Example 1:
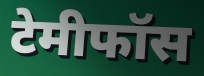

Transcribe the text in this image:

टेमीफॉस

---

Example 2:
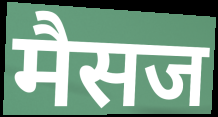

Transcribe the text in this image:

मैसज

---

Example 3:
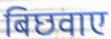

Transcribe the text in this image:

बिछवाए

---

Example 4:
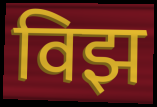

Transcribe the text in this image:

विझ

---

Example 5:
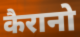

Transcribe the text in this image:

कैरानो